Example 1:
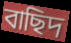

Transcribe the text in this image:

বাছিদ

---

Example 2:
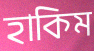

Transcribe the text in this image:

হাকিম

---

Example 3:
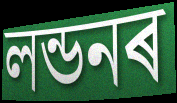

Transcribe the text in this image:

লন্ডনৰ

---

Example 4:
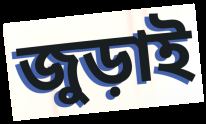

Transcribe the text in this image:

জুড়াই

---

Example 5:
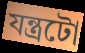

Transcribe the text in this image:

যন্ত্ৰটো